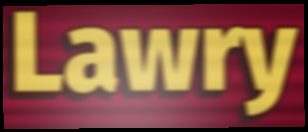
Lawry